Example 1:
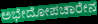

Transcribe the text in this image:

ಅಭೇದೋಪಚಾರೇನ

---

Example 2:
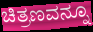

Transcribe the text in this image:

ಚಿತ್ರಣವನ್ನೂ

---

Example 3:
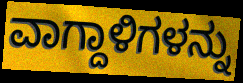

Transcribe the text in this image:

ವಾಗ್ದಾಳಿಗಳನ್ನು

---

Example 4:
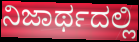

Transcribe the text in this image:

ನಿಜಾರ್ಥದಲ್ಲಿ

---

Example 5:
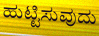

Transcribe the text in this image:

ಹುಟ್ಟಿಸುವುದು